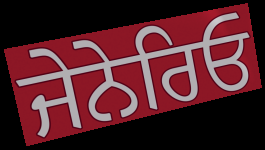
ਜੇਨੇਰਿਓ